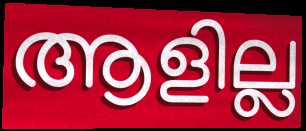
ആളില്ല